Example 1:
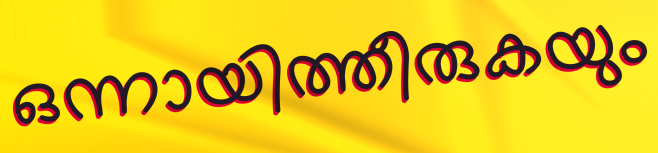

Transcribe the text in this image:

ഒന്നായിത്തീരുകയും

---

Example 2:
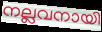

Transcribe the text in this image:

നല്ലവനായി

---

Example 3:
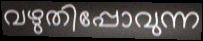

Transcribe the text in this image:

വഴുതിപ്പോവുന്ന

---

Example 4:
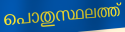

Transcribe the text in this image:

പൊതുസ്ഥലത്ത്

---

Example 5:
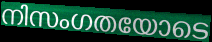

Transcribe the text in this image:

നിസംഗതയോടെ